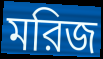
মরিজ